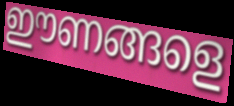
ഈണങ്ങളെ